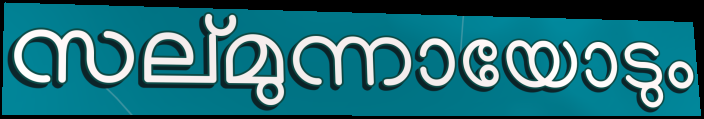
സല്മുന്നായോടും